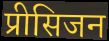
प्रीसिजन